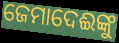
ଜେମାଦେଈଙ୍କୁ